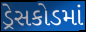
ડ્રેસકોડમાં